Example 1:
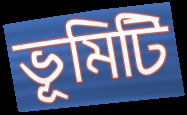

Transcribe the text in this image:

ভূমিটি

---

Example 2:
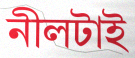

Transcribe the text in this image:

নীলটাই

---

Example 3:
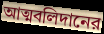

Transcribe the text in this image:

আত্মবলিদানের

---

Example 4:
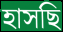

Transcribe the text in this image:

হাসছি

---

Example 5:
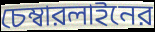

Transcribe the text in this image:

চেম্বারলাইনের